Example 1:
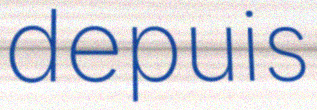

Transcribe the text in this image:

depuis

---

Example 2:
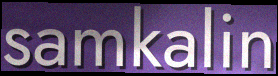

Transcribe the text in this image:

samkalin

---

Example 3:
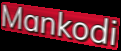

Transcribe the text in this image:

Mankodi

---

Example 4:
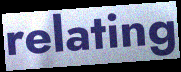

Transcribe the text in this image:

relating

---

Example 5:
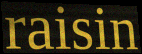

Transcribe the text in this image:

raisin